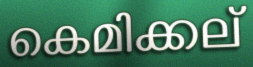
കെമിക്കല്